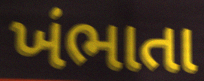
ખંભાતા